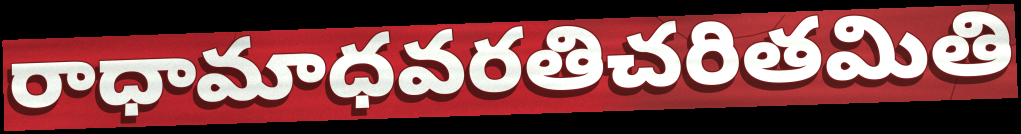
రాధామాధవరతిచరితమితి